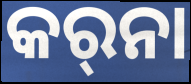
କର୍‌ନା